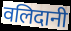
वलिदानी